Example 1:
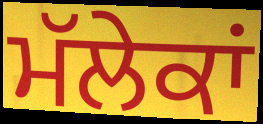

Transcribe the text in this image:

ਮੱਲੇਕਾਂ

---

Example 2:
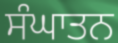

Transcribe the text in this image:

ਸੰਘਾਤਨ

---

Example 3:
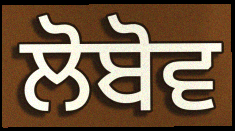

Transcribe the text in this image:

ਲੋਬੋਵ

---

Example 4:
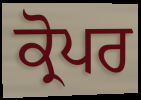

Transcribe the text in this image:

ਕ੍ਰੋਪਰ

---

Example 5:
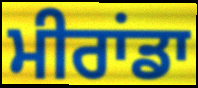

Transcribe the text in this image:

ਮੀਰਾਂਡਾ